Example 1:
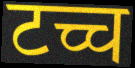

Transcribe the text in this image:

टच्च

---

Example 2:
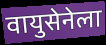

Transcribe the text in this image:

वायुसेनेला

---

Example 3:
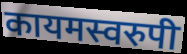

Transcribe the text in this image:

कायमस्वरुपी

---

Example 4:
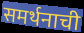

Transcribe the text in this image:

समर्थनाची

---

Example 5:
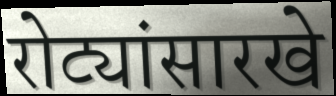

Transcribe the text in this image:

रोट्यांसारखे